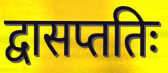
द्वासप्ततिः